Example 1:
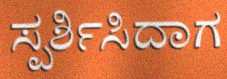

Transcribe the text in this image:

ಸ್ಪರ್ಶಿಸಿದಾಗ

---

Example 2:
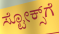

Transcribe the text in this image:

ಸ್ಟೋಕ್ಸ್‌ಗೆ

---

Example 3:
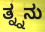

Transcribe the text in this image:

ತ್ನ್ನನು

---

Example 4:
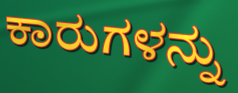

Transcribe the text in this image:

ಕಾರುಗಳನ್ನು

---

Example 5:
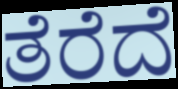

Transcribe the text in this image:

ತೆರೆದೆ